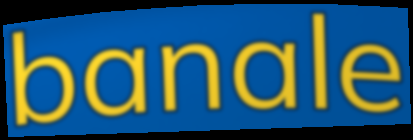
banale